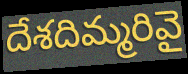
దేశదిమ్మరివై